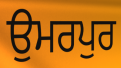
ਉਮਰਪੁਰ